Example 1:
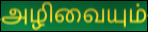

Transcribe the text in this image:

அழிவையும்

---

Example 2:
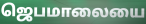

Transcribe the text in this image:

ஜெபமாலையை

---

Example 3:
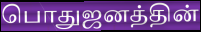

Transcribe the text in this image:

பொதுஜனத்தின்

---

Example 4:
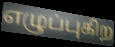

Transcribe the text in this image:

எழுப்புகிற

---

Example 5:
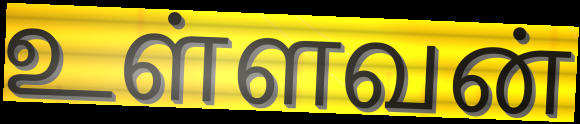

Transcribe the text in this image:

உள்ளவன்